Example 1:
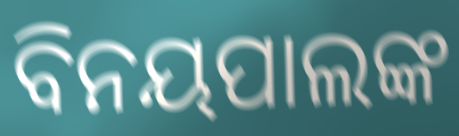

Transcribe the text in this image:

ବିନୟପାଲଙ୍କ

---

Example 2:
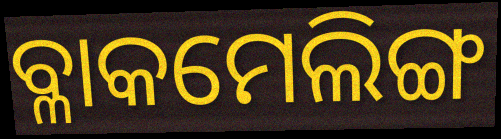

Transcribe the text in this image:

ବ୍ଳାକମେଲିଙ୍ଗ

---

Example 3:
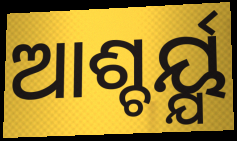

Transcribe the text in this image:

ଆଶ୍ଚର୍ୟ୍ଯ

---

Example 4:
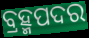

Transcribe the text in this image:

ବ୍ରହ୍ମପଦର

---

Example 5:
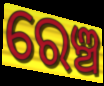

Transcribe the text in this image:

ରେଞ୍ଚ